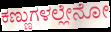
ಕಣ್ಣುಗಳಲ್ಲೇನೋ